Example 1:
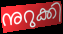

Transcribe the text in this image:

നുറുക്കി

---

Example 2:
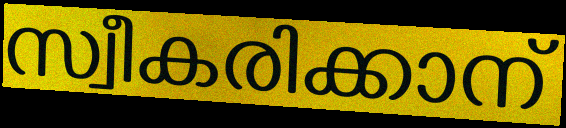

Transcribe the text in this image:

സ്വീകരിക്കാന്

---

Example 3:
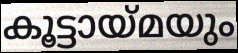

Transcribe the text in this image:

കൂട്ടായ്മയും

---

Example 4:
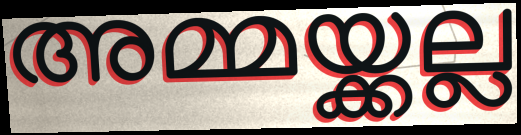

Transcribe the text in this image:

അമ്മയ്ക്കല്ല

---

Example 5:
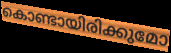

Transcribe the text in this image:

കൊണ്ടായിരിക്കുമോ